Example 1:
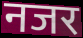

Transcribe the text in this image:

नजर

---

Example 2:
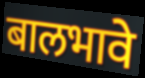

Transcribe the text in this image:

बालभावे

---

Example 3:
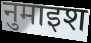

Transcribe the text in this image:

नुमाइश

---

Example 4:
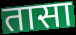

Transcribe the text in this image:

तासा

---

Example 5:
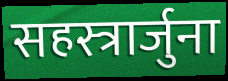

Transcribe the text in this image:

सहस्त्रार्जुना